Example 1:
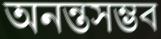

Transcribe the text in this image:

অনন্তসম্ভব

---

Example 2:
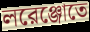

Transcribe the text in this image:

লরেঞ্জোতে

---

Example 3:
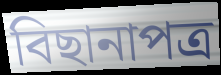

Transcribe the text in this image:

বিছানাপত্র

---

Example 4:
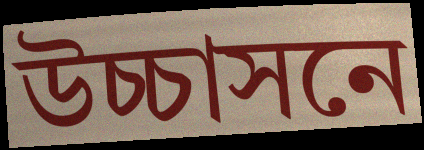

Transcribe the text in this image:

উচ্চাসনে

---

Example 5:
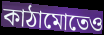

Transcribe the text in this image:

কাঠামোতেও